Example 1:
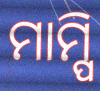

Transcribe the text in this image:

ମାମ୍ପି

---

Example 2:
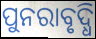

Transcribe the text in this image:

ପୁନରାବୃଦ୍ଧି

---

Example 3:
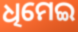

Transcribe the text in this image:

ଧିମେଇ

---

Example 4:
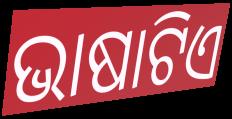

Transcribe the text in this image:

ଭାଷାଟିଏ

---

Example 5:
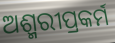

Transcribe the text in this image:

ଅଶ୍ମରୀପ୍ରକର୍ମ